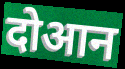
दोआन